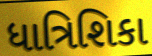
ધાત્રિશિકા